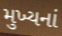
મુખ્યનાં